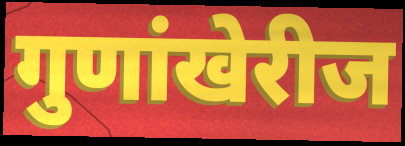
गुणांखेरीज